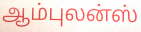
ஆம்புலன்ஸ்